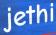
jethi